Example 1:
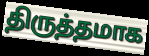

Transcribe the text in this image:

திருத்தமாக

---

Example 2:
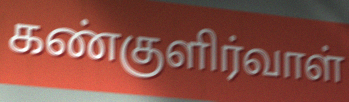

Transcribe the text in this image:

கண்குளிர்வாள்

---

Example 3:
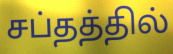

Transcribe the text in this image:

சப்தத்தில்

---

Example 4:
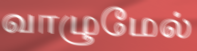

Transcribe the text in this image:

வாழுமேல்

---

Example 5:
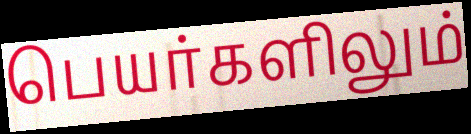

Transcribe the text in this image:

பெயர்களிலும்